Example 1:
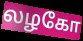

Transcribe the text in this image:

லழகோ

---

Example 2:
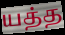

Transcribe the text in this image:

யத்த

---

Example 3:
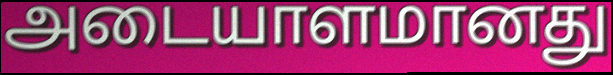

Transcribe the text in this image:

அடையாளமானது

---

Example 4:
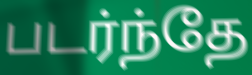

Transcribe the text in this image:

படர்ந்தே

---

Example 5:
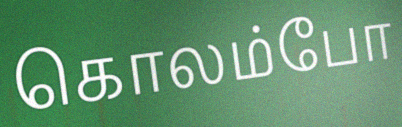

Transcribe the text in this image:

கொலம்போ